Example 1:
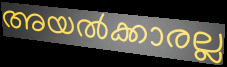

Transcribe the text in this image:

അയൽക്കാരല്ല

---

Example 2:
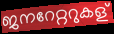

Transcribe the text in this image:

ജനറേറ്ററുകള്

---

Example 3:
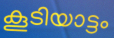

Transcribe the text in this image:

കൂടിയാട്ടം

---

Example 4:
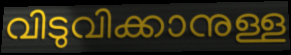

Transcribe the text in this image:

വിടുവിക്കാനുള്ള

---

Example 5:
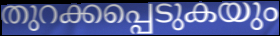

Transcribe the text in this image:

തുറക്കപ്പെടുകയും